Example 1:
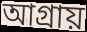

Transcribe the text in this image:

আগ্রায়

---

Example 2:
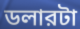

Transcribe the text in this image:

ডলারটা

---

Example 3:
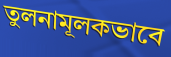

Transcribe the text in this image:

তুলনামূলকভাবে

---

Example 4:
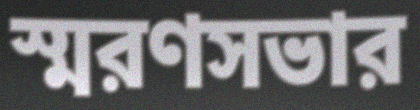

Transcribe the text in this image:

স্মরণসভার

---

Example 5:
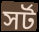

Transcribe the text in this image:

সর্ট